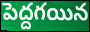
పెద్దగయిన